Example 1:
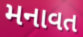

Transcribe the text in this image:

મનાવત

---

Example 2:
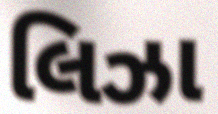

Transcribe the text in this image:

લિઝા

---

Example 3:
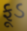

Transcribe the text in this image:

ફૂડ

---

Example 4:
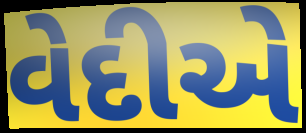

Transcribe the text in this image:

વેદીએ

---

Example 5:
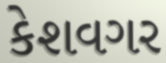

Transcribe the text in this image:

કેશવગર